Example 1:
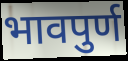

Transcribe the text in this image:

भावपुर्ण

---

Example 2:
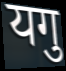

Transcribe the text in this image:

यगु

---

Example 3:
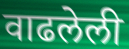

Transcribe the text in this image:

वाढलेली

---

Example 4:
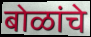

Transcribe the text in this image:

बोळांचे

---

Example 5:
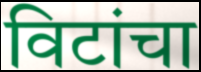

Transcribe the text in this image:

विटांचा